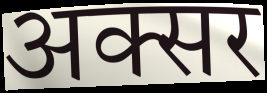
अक्सर